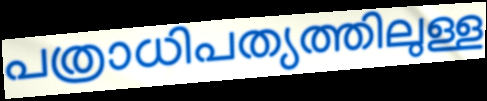
പത്രാധിപത്യത്തിലുള്ള